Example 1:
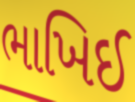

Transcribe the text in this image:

ભાખિઈ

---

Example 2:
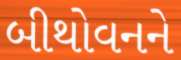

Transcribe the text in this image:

બીથોવનને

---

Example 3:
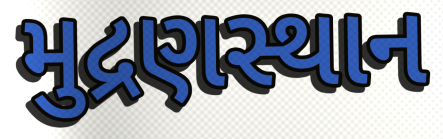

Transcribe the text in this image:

મુદ્રણસ્થાન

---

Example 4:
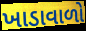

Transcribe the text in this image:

ખાડાવાળો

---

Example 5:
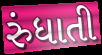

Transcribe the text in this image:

રુંધાતી